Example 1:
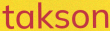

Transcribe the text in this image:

takson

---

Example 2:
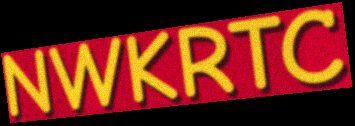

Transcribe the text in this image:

NWKRTC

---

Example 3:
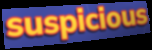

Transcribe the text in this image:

suspicious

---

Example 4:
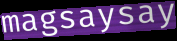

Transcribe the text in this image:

magsaysay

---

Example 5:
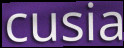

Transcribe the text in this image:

cusia